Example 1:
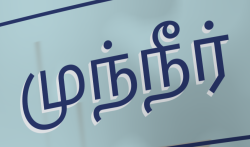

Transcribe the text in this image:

முந்நீர்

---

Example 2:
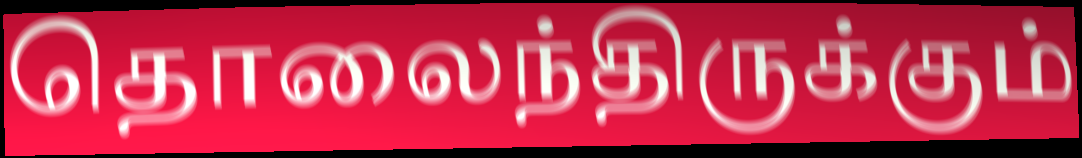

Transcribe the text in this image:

தொலைந்திருக்கும்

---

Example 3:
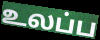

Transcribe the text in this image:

உலப்ப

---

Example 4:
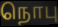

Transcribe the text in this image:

நொபு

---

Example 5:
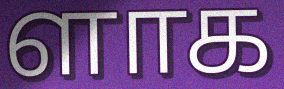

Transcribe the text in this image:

ளாக